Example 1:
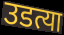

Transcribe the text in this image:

उडत्या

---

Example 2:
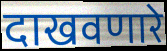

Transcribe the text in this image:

दाखवणारे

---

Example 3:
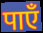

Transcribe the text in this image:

पाएँ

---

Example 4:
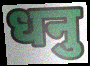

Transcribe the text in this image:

धनु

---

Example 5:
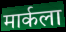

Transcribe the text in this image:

मार्कला